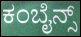
ಕಂಬೈನ್ಸ್